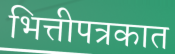
भित्तीपत्रकात